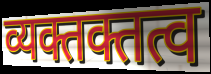
व्यक्तक्तत्व